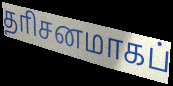
தரிசனமாகப்